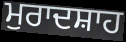
ਮੁਰਾਦਸ਼ਾਹ